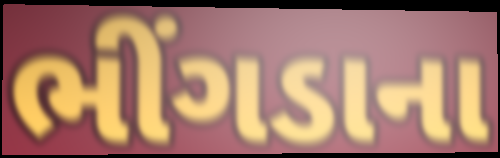
ભીંગડાના